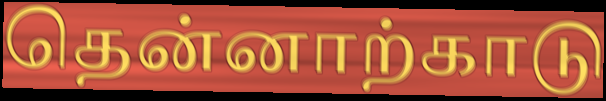
தென்னாற்காடு